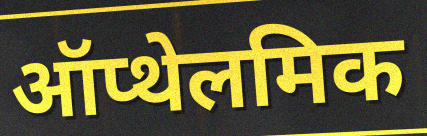
ऑप्थेलमिक